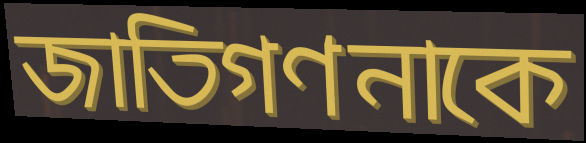
জাতিগণনাকে